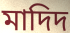
মাদিদ